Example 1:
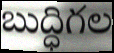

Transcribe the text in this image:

బుద్ధిగల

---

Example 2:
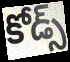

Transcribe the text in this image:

కోడ్స్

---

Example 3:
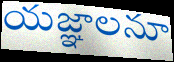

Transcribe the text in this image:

యజ్ఞాలనూ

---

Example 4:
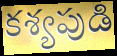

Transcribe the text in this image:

కశ్యపుడి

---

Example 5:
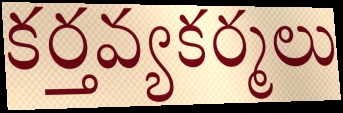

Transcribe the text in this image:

కర్తవ్యకర్మలు